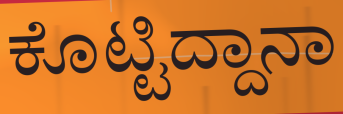
ಕೊಟ್ಟಿದ್ದಾನಾ